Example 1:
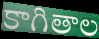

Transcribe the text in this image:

కాగితాల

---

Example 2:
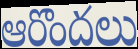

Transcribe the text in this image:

ఆరొందలు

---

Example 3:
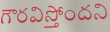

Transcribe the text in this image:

గౌరవిస్తోందని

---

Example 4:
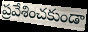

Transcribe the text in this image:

ప్రవేశించకుండా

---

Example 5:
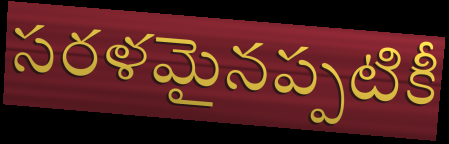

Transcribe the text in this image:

సరళమైనప్పటికీ